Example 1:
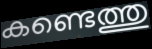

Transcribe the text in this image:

കണ്ടെത്തു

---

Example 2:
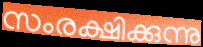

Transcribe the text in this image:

സംരക്ഷിക്കുന്നു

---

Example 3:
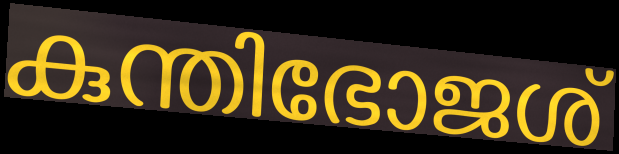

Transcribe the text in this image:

കുന്തിഭോജശ്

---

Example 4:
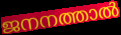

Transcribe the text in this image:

ജനനത്താൽ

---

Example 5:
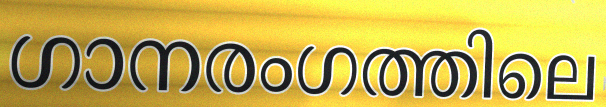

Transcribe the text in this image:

ഗാനരംഗത്തിലെ